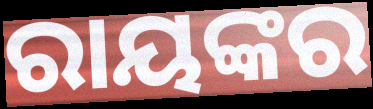
ରାୟଙ୍କର